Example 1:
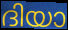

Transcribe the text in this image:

ദിയാ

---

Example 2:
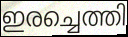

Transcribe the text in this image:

ഇരച്ചെത്തി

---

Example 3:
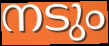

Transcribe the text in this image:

നടും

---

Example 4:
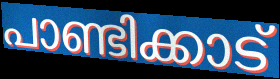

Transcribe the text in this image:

പാണ്ടിക്കാട്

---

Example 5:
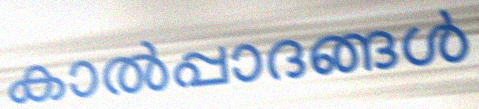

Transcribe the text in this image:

കാൽപ്പാദങ്ങൾ